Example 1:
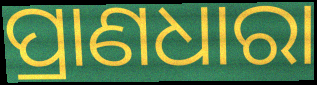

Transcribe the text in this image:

ପ୍ରାଣଧାରା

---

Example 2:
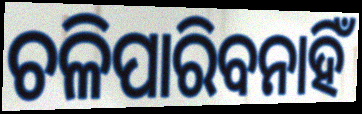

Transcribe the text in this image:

ଚଳିପାରିବନାହିଁ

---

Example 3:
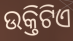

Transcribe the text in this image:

ଉକ୍ତିଟିଏ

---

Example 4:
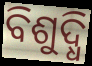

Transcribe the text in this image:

ବିଶୁଦ୍ଧି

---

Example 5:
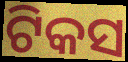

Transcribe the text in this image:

ଟିକସ